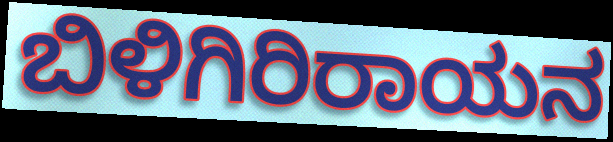
ಬಿಳಿಗಿರಿರಾಯನ